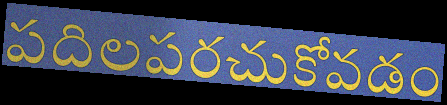
పదిలపరచుకోవడం